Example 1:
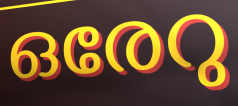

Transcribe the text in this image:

ഒരേറു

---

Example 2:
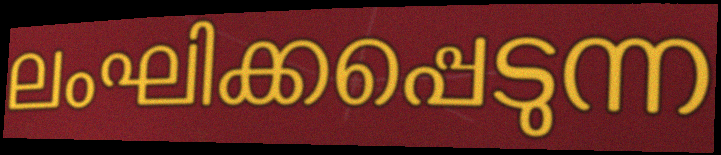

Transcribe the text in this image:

ലംഘിക്കപ്പെടുന്ന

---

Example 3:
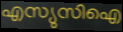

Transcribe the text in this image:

എസ്യുസിഐ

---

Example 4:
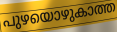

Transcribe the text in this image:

പുഴയൊഴുകാത്ത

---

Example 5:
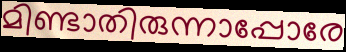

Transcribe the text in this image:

മിണ്ടാതിരുന്നാപ്പോരേ